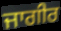
ਜਾਗੀਰ